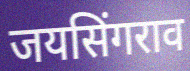
जयसिंगराव